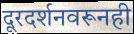
दूरदर्शनवरूनही